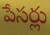
పేసర్లు